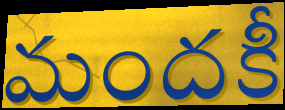
మందకీ